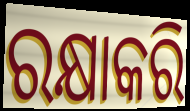
ରକ୍ଷାକରି